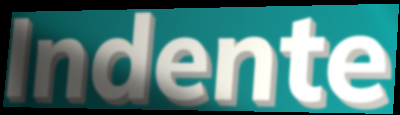
Indente